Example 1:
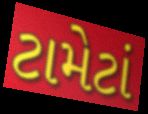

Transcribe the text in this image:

ટામેટાં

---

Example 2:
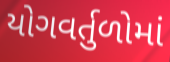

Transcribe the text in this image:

યોગવર્તુળોમાં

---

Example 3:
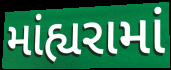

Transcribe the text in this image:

માંહ્યરામાં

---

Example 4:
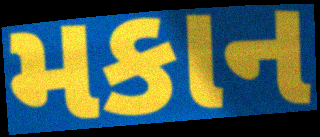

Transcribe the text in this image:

મકાન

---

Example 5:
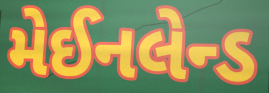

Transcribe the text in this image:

મેઈનલેન્ડ